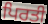
ਪਿਰਤੀ